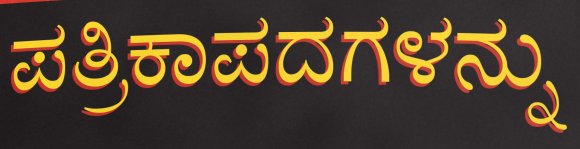
ಪತ್ರಿಕಾಪದಗಳನ್ನು